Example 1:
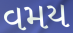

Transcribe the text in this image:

વમય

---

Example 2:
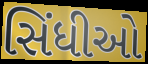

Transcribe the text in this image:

સિંધીઓ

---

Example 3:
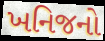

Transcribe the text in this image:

ખનિજનો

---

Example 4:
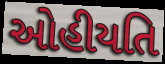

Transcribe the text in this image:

ઓહીયતિ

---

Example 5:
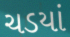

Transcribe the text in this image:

ચડયાં